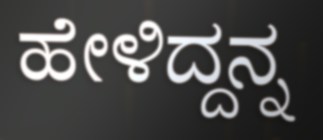
ಹೇಳಿದ್ದನ್ನ